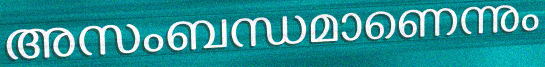
അസംബന്ധമാണെന്നും